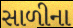
સાળીના